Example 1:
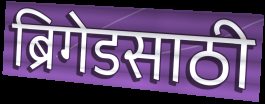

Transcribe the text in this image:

ब्रिगेडसाठी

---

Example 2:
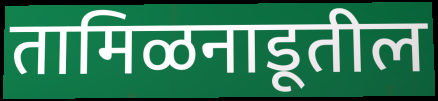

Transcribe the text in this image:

तामिळनाडूतील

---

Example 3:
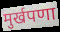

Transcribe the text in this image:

मुर्खपणा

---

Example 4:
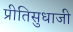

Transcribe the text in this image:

प्रीतिसुधाजी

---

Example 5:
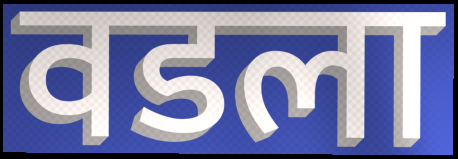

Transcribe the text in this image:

वडला